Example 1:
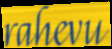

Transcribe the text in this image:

rahevu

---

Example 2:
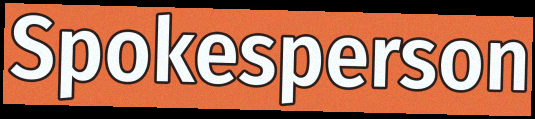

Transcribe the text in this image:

Spokesperson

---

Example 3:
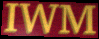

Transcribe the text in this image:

IWM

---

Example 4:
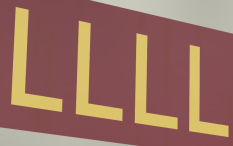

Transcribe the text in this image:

LLLL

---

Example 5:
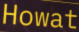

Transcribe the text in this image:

Howat